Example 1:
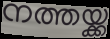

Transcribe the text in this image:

നത്തയ്ക്ക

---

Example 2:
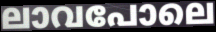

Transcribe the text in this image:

ലാവപോലെ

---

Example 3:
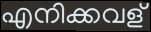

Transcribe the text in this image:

എനിക്കവള്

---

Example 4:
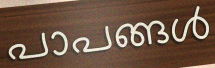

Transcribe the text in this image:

പാപങ്ങൾ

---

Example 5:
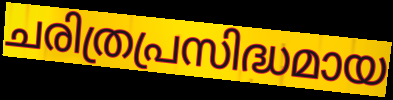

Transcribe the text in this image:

ചരിത്രപ്രസിദ്ധമായ